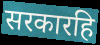
सरकारहि